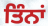
ਤਿੰਨਾਂ